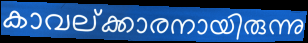
കാവല്ക്കാരനായിരുന്നു